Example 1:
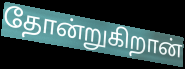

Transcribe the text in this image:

தோன்றுகிறான்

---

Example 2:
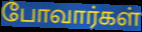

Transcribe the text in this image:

போவார்கள்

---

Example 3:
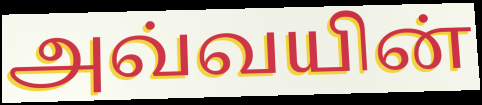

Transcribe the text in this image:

அவ்வயின்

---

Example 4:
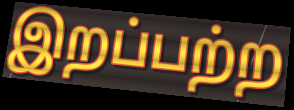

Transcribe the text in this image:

இறப்பற்ற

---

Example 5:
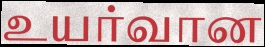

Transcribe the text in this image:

உயர்வான